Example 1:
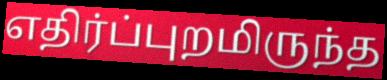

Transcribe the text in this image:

எதிர்ப்புறமிருந்த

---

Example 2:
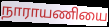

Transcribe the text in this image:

நாராயணியை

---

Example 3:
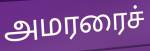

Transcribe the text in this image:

அமரரைச்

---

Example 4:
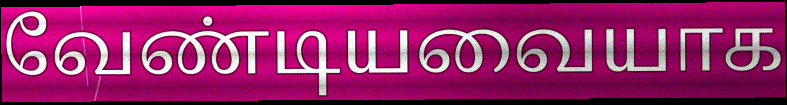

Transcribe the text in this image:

வேண்டியவையாக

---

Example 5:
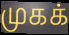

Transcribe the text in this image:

முகக்